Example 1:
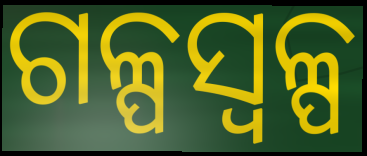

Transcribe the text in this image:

ଗଳ୍ପସ୍ୱଳ୍ପ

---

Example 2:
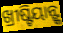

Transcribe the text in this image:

ଖ୍ରୀଷ୍ଟିୟାନ୍ଙ୍କ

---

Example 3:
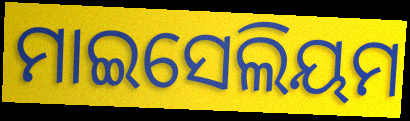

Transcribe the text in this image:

ମାଇସେଲିୟମ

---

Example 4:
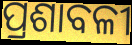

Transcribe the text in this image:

ପ୍ରଶାବଳୀ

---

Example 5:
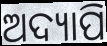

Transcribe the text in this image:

ଅଦ୍ୟାପି